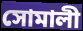
সোমালী